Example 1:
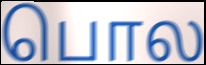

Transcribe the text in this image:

பொல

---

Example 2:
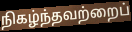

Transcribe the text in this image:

நிகழ்ந்தவற்றைப்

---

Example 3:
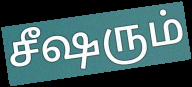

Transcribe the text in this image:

சீஷரும்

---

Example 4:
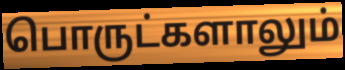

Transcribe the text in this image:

பொருட்களாலும்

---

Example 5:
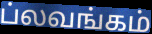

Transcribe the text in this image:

ப்லவங்கம்